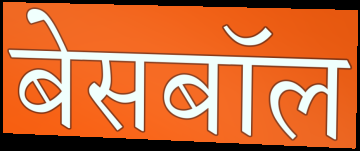
बेसबॉल